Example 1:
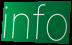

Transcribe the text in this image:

info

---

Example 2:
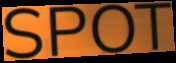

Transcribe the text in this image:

SPOT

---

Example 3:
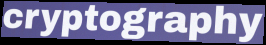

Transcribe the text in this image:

cryptography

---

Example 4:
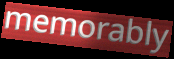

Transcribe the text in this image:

memorably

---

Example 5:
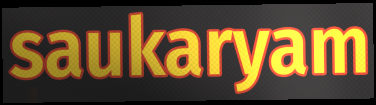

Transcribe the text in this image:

saukaryam